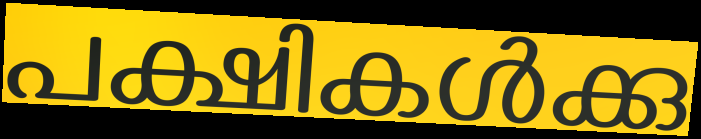
പക്ഷികൾക്കു